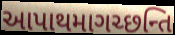
આપાથમાગચ્છન્તિ